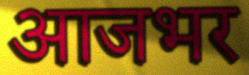
आजभर